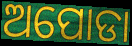
ଅପୋଡା